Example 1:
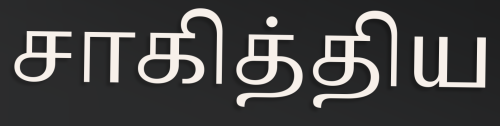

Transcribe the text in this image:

சாகித்திய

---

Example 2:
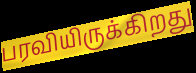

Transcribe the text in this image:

பரவியிருக்கிறது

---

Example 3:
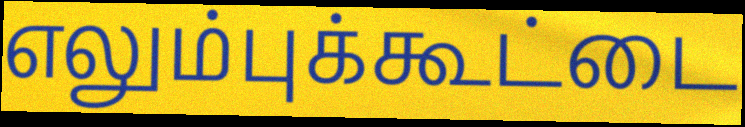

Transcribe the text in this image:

எலும்புக்கூட்டை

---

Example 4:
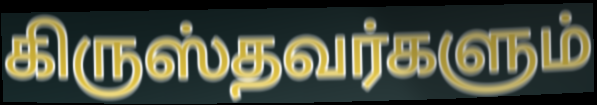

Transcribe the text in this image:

கிருஸ்தவர்களும்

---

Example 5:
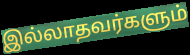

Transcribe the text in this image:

இல்லாதவர்களும்